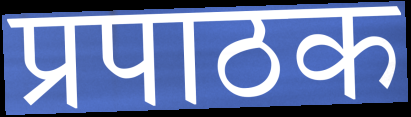
प्रपाठक